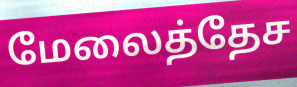
மேலைத்தேச